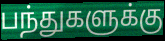
பந்துகளுக்கு